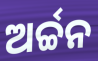
ଅର୍ଚ୍ଚନ